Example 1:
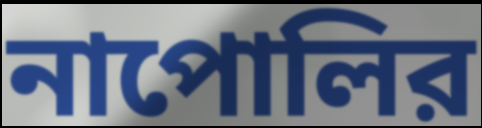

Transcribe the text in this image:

নাপোলির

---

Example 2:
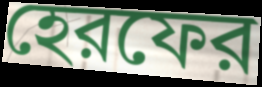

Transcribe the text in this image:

হেরফের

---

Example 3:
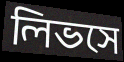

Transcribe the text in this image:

লিভসে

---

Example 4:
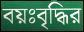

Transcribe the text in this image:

বয়ঃবৃদ্ধির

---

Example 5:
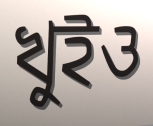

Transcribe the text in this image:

খুইও